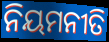
ନିୟମନୀତି